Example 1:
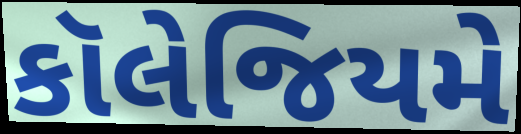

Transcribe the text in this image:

કૉલેજિયમે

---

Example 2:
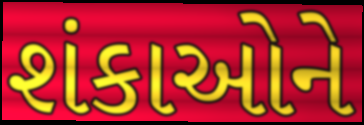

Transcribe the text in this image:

શંકાઓને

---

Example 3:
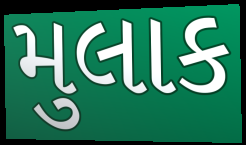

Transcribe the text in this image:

મુલાક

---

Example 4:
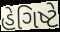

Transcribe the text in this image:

હેગિષ્ટે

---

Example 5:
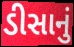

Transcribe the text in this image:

ડીસાનું